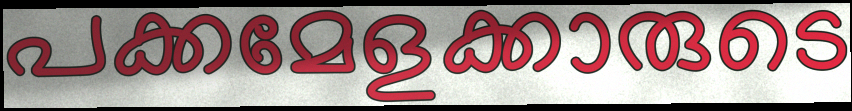
പക്കമേളക്കാരുടെ